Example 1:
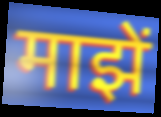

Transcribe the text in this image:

माझें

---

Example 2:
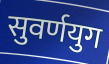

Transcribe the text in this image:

सुवर्णयुग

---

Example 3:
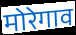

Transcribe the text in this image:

मोरेगाव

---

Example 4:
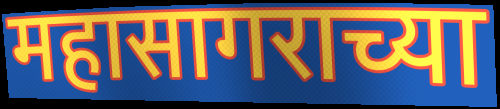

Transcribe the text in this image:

महासागराच्या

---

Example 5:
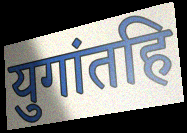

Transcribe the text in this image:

युगांतहि